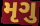
મૃગુ